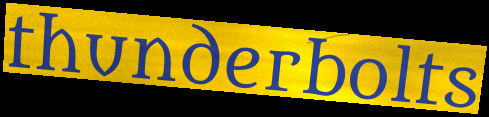
thunderbolts